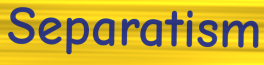
Separatism